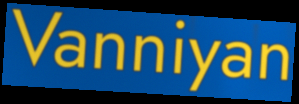
Vanniyan